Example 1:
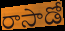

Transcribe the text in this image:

రాసాడో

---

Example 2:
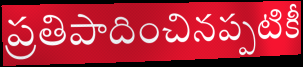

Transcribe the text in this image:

ప్రతిపాదించినప్పటికీ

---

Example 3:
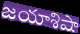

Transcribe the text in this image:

జయాశిషా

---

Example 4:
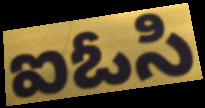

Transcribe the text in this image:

ఐఓసి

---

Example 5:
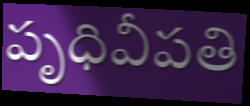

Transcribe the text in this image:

పృధివీపతి